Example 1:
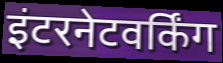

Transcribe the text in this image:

इंटरनेटवर्किंग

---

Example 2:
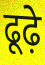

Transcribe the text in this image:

ढूढ़े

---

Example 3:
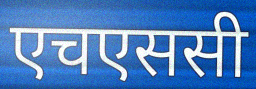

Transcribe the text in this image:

एचएससी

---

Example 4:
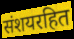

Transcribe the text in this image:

संशयरहित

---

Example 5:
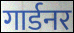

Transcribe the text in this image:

गार्डनर